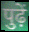
पुढ़ें